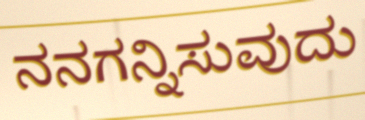
ನನಗನ್ನಿಸುವುದು